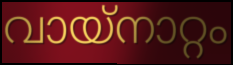
വായ്നാറ്റം